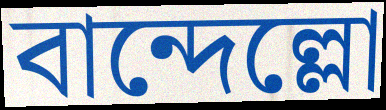
বান্দেল্লো